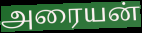
அரையன்